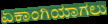
ಏಕಾಂಗಿಯಾಗಲು